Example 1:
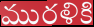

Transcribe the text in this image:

మురళికి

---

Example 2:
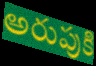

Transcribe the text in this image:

అరుపుకి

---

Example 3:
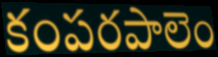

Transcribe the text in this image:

కంపరపాలెం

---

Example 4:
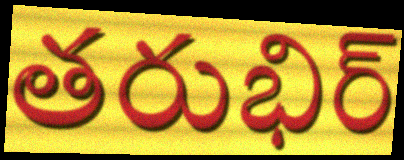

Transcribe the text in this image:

తరుభిర్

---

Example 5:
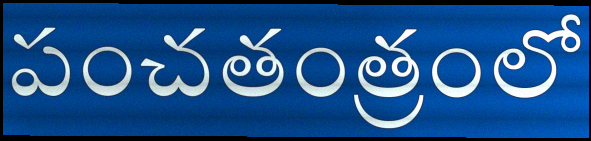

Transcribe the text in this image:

పంచతంత్రంలో